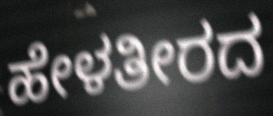
ಹೇಳತೀರದ